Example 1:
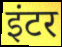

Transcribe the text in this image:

इंटर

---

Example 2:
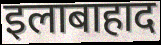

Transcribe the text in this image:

इलाबाहाद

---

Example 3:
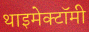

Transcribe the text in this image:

थाइमेक्टॉमी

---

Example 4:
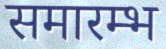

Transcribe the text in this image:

समारम्भ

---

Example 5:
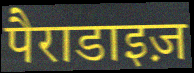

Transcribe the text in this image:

पैराडाइज़